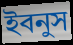
ইবনুস